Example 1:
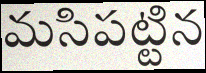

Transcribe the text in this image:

మసిపట్టిన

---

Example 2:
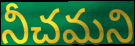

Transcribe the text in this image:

నీచమని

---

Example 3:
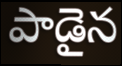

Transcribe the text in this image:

పాడైన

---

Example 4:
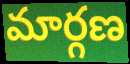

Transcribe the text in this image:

మార్గణ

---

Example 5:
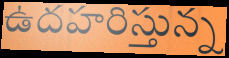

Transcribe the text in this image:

ఉదహరిస్తున్న